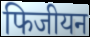
फिजीयन